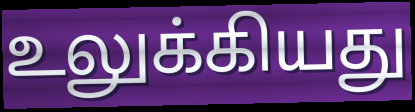
உலுக்கியது